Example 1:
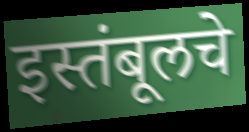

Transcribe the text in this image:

इस्तंबूलचे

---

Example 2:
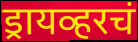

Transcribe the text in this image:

ड्रायव्हरचं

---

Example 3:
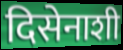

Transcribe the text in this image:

दिसेनाशी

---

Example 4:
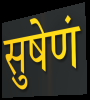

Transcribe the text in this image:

सुषेणं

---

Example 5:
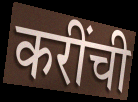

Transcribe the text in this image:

करींची